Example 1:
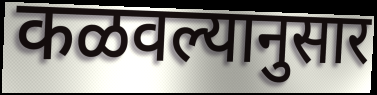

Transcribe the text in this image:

कळवल्यानुसार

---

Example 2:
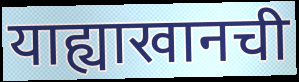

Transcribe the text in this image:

याह्याखानची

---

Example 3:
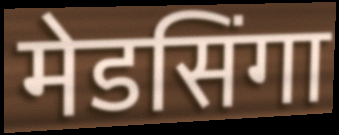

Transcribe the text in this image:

मेडसिंगा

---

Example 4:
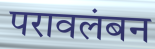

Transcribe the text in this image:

परावलंबन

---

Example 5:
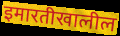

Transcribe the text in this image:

इमारतीखालील